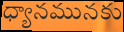
ధ్యానమునకు